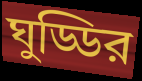
ঘুড্ডির